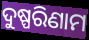
ଦୁଷ୍ପରିଣାମ